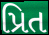
પ્રિત